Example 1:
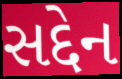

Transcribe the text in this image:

સદ્દેન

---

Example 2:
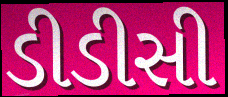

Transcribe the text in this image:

ડીડીસી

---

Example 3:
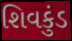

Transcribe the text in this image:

શિવકુંડ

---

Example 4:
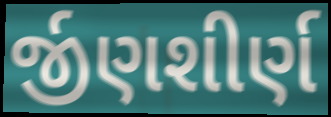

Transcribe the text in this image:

ર્જીણશીર્ણ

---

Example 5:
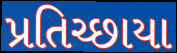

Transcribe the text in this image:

પ્રતિચ્છાયા